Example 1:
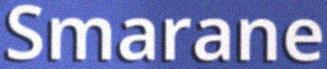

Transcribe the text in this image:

Smarane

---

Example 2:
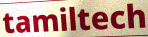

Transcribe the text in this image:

tamiltech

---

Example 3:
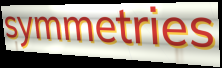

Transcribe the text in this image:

symmetries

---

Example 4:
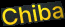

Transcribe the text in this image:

Chiba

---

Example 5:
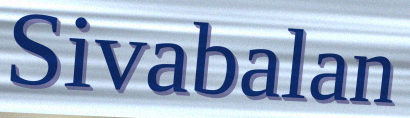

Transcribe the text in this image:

Sivabalan